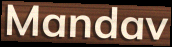
Mandav